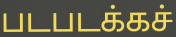
படபடக்கச்